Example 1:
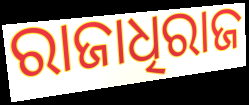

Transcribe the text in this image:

ରାଜାଧିରାଜ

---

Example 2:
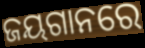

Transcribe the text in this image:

ଜୟଗାନରେ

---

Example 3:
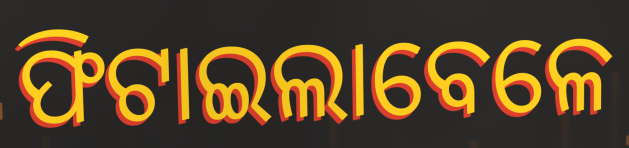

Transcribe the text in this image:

ଫିଟାଇଲାବେଳେ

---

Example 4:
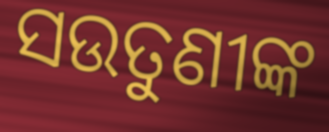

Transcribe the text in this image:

ସଉତୁଣୀଙ୍କ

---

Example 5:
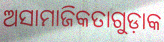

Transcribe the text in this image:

ଅସାମାଜିକତାଗୁଡ଼ାକ